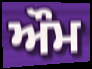
ਔਮ